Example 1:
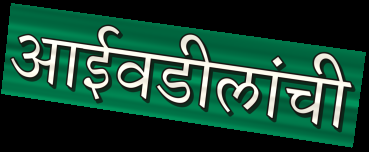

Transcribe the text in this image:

आईवडीलांची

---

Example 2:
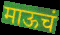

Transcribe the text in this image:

माऊचं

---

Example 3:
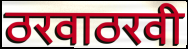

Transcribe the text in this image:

ठरवाठरवी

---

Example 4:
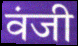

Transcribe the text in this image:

वंजी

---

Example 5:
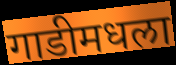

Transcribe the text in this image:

गाडीमधला